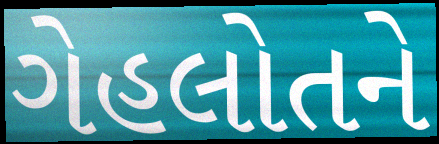
ગેહલોતને